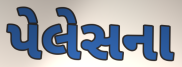
પેલેસના